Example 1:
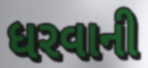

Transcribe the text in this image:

ધરવાની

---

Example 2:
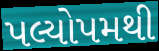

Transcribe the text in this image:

પલ્યોપમથી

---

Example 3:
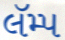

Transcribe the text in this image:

લૅમ્પ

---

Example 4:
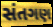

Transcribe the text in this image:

સંતગણ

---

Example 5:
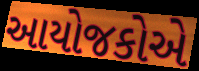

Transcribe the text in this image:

આયોજકોએ